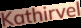
Kathirvel